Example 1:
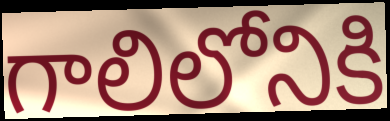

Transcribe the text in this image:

గాలిలోనికి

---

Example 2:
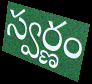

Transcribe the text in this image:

స్వర్ణం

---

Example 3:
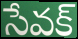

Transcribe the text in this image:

సేవక్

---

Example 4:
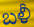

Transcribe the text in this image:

బళీ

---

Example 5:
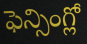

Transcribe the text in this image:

ఫెన్సింగ్లో